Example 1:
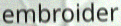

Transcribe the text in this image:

embroider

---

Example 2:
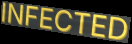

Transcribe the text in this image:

INFECTED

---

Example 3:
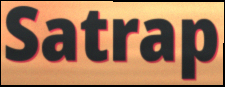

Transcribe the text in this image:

Satrap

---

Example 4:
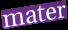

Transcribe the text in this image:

mater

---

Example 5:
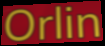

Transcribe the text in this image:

Orlin